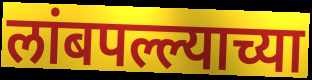
लांबपल्ल्याच्या